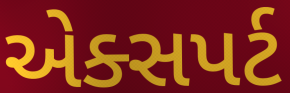
એક્સપર્ટ